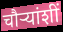
चौर्‍यांशीं